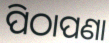
ପିଠାପଣା